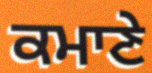
ਕਮਾਣੇ